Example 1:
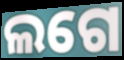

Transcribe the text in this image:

ଲଗେ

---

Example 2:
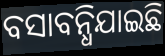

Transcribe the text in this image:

ବସାବନ୍ଧିଯାଇଛି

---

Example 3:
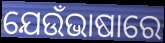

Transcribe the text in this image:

ଯେଉଁଭାଷାରେ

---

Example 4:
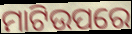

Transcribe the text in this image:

ମାଟିଉପରେ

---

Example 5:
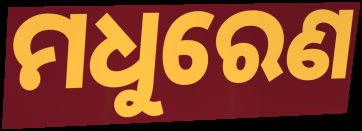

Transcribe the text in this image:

ମଧୁରେଣ